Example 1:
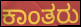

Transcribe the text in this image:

ಕಾಂತರು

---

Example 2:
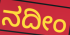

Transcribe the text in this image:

ನದೀಂ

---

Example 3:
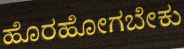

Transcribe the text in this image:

ಹೊರಹೋಗಬೇಕು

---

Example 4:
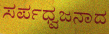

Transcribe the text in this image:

ಸರ್ಪಧ್ವಜನಾದ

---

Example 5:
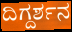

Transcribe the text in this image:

ದಿಗ್ದರ್ಶನ